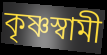
কৃষ্ণস্বামী